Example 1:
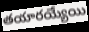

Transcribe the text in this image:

తయారయ్యేయి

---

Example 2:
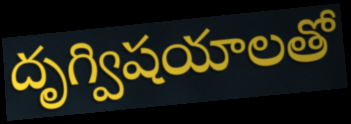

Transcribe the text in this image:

దృగ్విషయాలతో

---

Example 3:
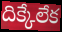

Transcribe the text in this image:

దిక్కేలేక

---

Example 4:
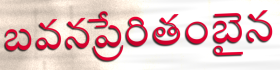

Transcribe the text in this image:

బవనప్రేరితంబైన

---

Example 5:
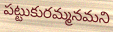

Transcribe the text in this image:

పట్టుకురమ్మనమని